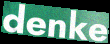
denke